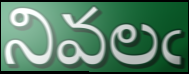
నివలఁ